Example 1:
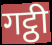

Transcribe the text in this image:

गट्ठी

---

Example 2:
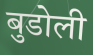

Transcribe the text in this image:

बुडोली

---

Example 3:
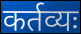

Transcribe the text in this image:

कर्तव्यः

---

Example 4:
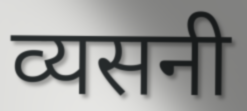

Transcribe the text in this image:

व्यसनी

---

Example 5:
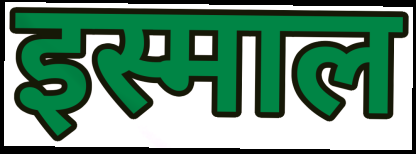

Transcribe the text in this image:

इस्माल